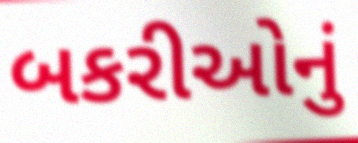
બકરીઓનું